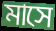
মাসে